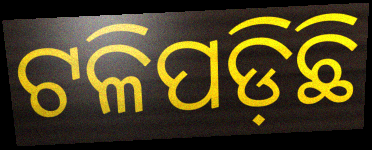
ଟଳିପଡ଼ିଛି